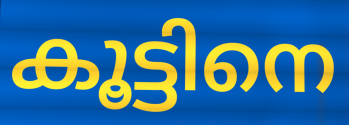
കൂട്ടിനെ